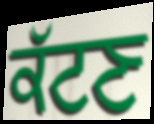
ਕੱਟਣ